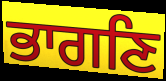
ਭਾਗਣਿ